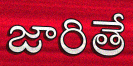
జారితే